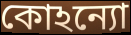
কোঽন্যো